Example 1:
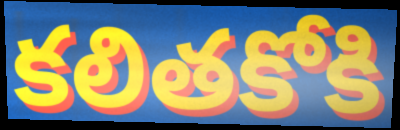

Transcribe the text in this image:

కలితకోకి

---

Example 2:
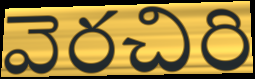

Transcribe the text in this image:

వెరచిరి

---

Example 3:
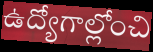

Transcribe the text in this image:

ఉద్యోగాల్లోంచి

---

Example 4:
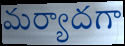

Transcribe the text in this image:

మర్యాదగా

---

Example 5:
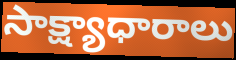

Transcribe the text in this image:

సాక్ష్యాధారాలు